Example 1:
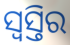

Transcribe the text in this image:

ସ୍ଵସ୍ତିର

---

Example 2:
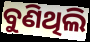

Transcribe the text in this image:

ବୁଣିଥିଲି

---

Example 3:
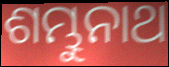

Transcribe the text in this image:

ଶମ୍ଭୁନାଥ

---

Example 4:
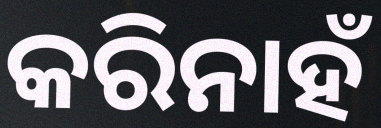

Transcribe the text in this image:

କରିନାହଁ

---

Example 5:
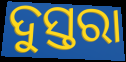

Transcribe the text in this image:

ଦୁସ୍ତରା